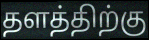
தளத்திற்கு